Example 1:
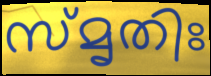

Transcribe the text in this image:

സ്മൃതിഃ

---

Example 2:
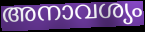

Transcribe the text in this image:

അനാവശ്യം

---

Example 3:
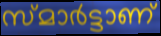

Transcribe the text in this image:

സ്മാർട്ടാണ്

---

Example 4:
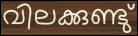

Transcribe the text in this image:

വിലക്കുണ്ടു്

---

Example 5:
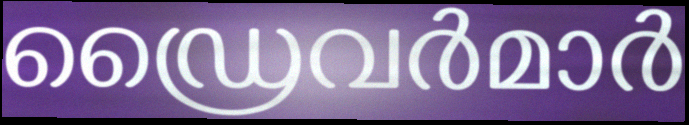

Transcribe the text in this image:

ഡ്രൈവർമാർ